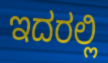
ಇದರಲ್ಲಿ